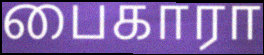
பைகாரா